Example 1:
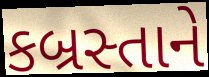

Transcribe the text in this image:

કબ્રસ્તાને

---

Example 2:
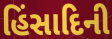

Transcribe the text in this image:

હિંસાદિની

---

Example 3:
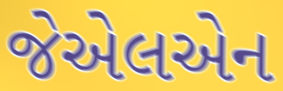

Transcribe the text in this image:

જેએલએન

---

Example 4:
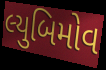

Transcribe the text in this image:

લ્યુબિમોવ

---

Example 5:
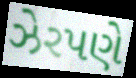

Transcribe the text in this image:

ઝેરપણે